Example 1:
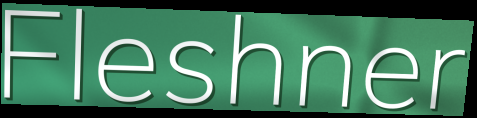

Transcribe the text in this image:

Fleshner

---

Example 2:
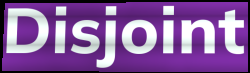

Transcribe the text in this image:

Disjoint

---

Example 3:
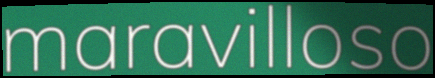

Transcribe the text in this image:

maravilloso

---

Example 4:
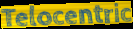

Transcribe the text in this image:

Telocentric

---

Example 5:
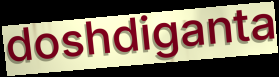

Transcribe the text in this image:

doshdiganta